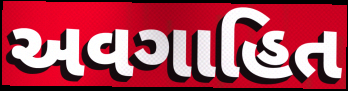
અવગાહિત